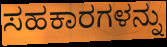
ಸಹಕಾರಗಳನ್ನು